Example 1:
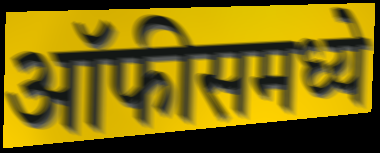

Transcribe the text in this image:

ऑफीसमध्ये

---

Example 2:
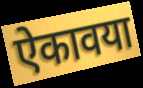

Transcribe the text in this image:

ऐकावया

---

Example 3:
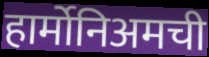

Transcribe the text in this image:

हार्मोनिअमची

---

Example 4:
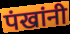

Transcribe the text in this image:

पंखांनी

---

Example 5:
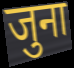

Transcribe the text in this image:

जुना